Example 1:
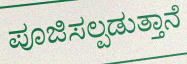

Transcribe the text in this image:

ಪೂಜಿಸಲ್ಪಡುತ್ತಾನೆ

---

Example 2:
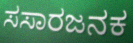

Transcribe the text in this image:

ಸಸಾರಜನಕ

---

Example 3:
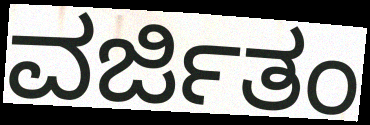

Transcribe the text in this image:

ವರ್ಜಿತಂ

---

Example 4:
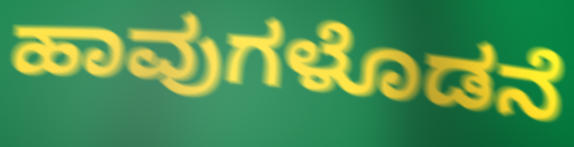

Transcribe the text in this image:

ಹಾವುಗಳೊಡನೆ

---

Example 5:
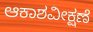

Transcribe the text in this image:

ಆಕಾಶವೀಕ್ಷಣೆ